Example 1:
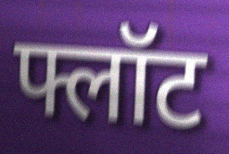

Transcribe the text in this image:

फ्लॉट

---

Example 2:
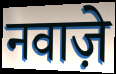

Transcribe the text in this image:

नवाज़े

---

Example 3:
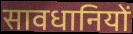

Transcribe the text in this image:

सावधानियों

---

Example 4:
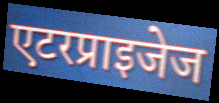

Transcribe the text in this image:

एटरप्राइजेज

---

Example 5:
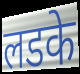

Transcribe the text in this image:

लडके